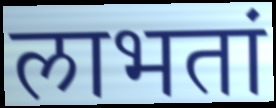
लाभतां